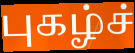
புகழ்ச்